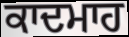
ਕਾਦਮਾਹ